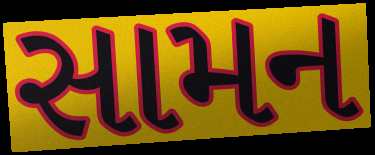
સામન